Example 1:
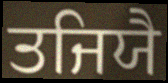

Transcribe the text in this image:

ਤਜਿਯੈ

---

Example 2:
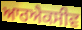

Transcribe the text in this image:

ਆਰਐਕਸੀਵ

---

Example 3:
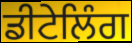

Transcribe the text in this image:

ਡੀਟੇਲਿੰਗ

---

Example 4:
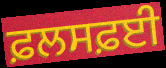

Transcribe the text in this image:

ਫ਼ਲਸਫ਼ਈ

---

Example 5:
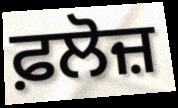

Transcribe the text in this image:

ਫ਼ਲੋਜ਼